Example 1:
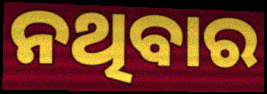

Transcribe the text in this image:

ନଥିବାର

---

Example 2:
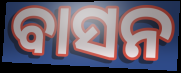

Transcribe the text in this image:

ବାସନ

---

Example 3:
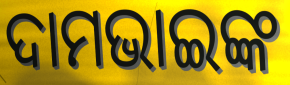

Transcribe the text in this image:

ଦାମଭାଇଙ୍କ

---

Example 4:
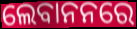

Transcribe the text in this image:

ଲେବାନନରେ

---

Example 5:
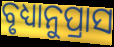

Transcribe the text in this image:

ବୃଧ୍ୟାନୁପ୍ରାସ